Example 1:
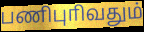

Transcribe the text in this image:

பணிபுரிவதும்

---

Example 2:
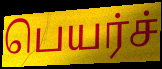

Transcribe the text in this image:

பெயர்ச்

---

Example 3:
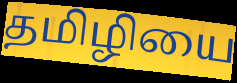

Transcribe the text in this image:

தமிழியை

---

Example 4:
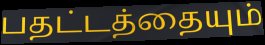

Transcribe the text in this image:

பதட்டத்தையும்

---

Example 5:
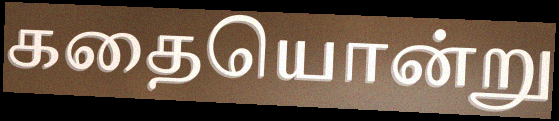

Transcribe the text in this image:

கதையொன்று